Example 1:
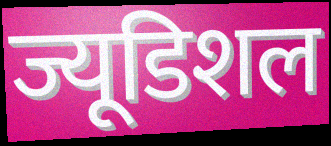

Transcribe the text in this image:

ज्यूडिशल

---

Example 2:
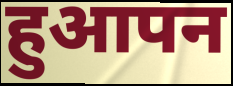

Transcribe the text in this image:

हुआपन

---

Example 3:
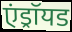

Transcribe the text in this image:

एंड्रॉयड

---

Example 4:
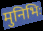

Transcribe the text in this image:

मुनिभिः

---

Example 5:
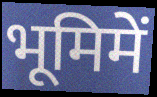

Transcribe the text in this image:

भूमिमें